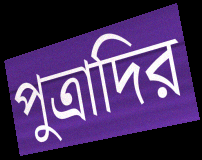
পুত্রাদির